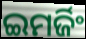
ଇମର୍ଜିଂ